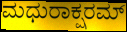
ಮಧುರಾಕ್ಷರಮ್